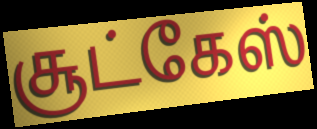
சூட்கேஸ்